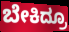
ಬೇಕಿದ್ರೂ